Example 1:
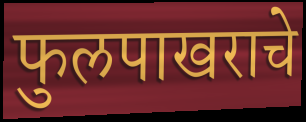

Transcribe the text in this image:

फुलपाखराचे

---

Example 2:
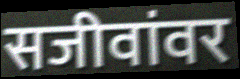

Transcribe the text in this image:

सजीवांवर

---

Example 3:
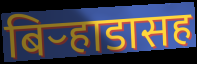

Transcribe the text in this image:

बिऱ्हाडासह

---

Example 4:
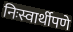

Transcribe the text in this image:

निःस्वार्थीपणे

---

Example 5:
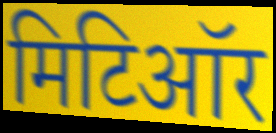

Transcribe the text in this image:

मिटिऑर